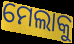
ମେଲାକୁ